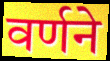
वर्णने